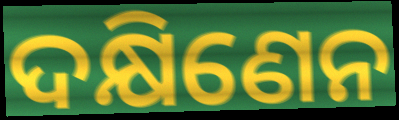
ଦକ୍ଷିଣେନ